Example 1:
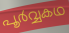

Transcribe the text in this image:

പൂർവ്വകഥ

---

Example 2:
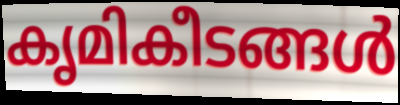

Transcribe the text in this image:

കൃമികീടങ്ങൾ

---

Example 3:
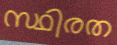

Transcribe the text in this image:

സ്ഥിരത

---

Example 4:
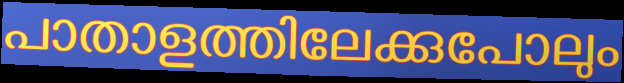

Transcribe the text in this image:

പാതാളത്തിലേക്കുപോലും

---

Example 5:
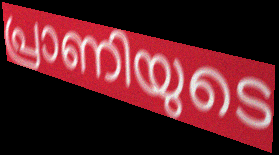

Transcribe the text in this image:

പ്രാണിയുടെ